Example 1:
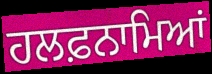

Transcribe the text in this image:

ਹਲਫ਼ਨਾਮਿਆਂ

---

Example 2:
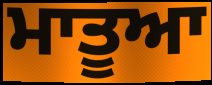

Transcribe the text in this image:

ਮਾਤੂਆ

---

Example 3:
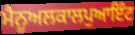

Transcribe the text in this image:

ਮੈਨੂਅਲਕਾਲਪੁਆਇੰਟ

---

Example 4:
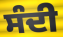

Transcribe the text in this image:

ਸੰਦੀ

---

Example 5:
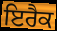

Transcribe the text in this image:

ਇਰੈਕ